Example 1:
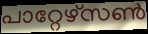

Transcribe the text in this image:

പാറ്റേഴ്സൺ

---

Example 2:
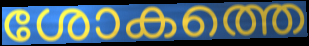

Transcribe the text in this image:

ശോകത്തെ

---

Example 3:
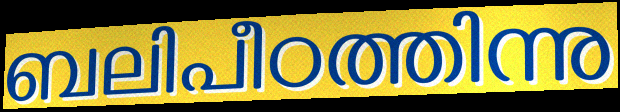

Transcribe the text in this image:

ബലിപീഠത്തിന്നു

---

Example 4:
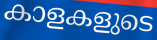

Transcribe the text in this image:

കാളകളുടെ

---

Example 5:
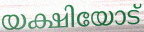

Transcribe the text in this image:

യക്ഷിയോട്